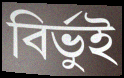
বির্ভুই